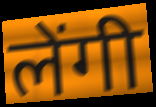
लेंगी